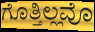
ಗೊತ್ತಿಲ್ಲವೊ